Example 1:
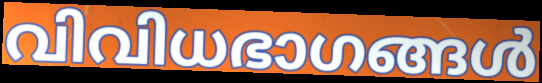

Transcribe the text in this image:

വിവിധഭാഗങ്ങൾ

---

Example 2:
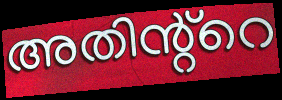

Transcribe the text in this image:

അതിന്റ്റെ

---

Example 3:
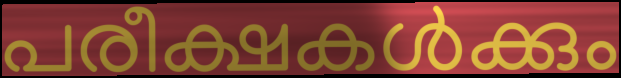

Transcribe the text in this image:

പരീക്ഷകൾക്കും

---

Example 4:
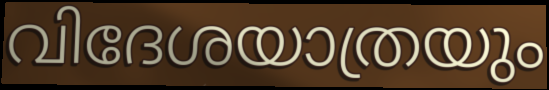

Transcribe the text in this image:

വിദേശയാത്രയും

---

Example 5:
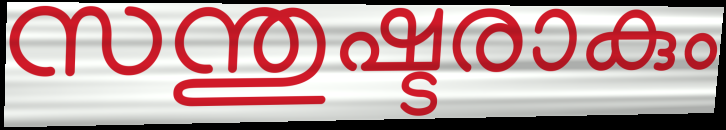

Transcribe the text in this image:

സന്തുഷ്ടരാകും